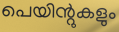
പെയിന്റുകളും